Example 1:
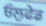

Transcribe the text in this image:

ਓਲੁਫੇਡ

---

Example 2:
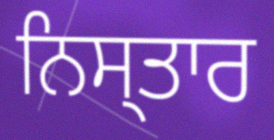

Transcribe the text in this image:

ਨਿਸ੍ਤਾਰ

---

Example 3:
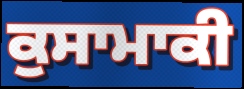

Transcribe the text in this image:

ਕੁਸਾਮਾਕੀ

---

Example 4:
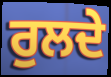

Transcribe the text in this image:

ਰੁਲਦੇ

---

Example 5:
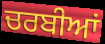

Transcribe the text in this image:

ਚਰਬੀਆਂ